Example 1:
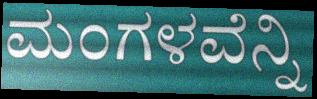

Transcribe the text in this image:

ಮಂಗಳವೆನ್ನಿ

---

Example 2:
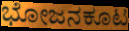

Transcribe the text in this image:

ಭೋಜನಕೂಟ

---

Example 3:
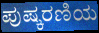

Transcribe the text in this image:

ಪುಷ್ಕರಣಿಯ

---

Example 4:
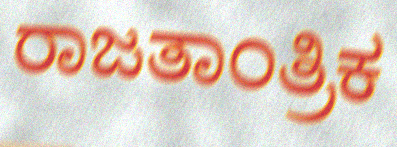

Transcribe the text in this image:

ರಾಜತಾಂತ್ರಿಕ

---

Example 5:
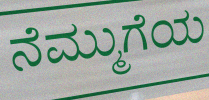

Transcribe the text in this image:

ನೆಮ್ಮುಗೆಯ